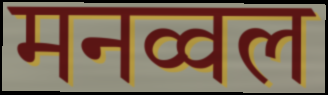
मनव्वल